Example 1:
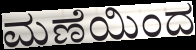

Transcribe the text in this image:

ಮಣೆಯಿಂದ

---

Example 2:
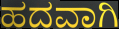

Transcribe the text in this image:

ಹದವಾಗಿ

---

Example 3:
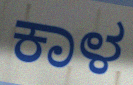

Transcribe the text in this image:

ಕಾಳ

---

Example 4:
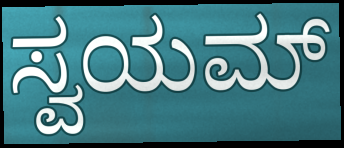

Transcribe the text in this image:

ಸ್ವಯಮ್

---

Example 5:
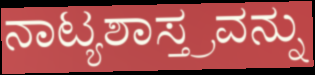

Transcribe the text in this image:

ನಾಟ್ಯಶಾಸ್ತ್ರವನ್ನು